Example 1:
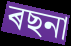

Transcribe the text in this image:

ৰছনা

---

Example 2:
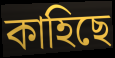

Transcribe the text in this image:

কাহিছে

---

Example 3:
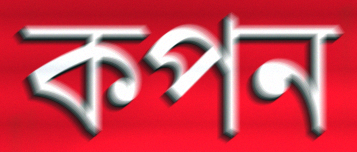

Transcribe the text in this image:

কপন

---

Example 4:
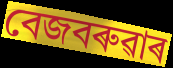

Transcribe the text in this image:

বেজবৰুৱাৰ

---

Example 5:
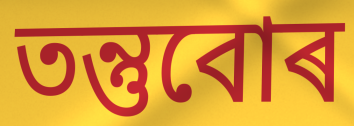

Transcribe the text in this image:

তন্তুবোৰ